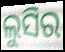
ଲୁସିର